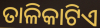
ତାଳିକାଟିଏ